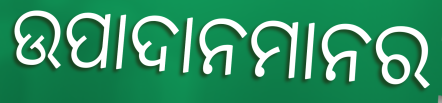
ଉପାଦାନମାନର